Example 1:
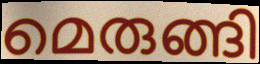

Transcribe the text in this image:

മെരുങ്ങി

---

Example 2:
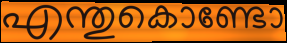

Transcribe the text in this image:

എന്തുകൊണ്ടോ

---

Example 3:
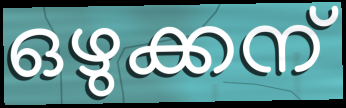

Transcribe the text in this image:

ഒഴുക്കന്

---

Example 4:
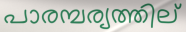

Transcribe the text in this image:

പാരമ്പര്യത്തില്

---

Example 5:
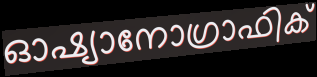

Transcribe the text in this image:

ഓഷ്യാനോഗ്രാഫിക്